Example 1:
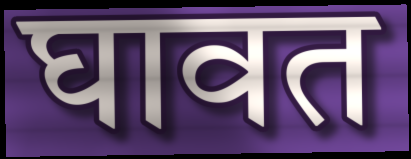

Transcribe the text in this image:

घावत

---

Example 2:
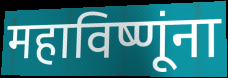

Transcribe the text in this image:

महाविष्णूंना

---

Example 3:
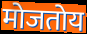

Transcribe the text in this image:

मोजतोय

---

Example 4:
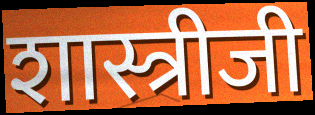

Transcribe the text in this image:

शास्त्रीजी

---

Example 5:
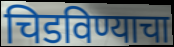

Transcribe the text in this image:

चिडविण्याचा